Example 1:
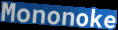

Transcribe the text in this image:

Mononoke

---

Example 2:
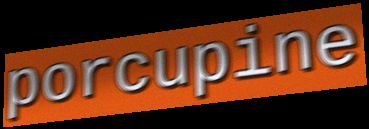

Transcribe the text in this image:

porcupine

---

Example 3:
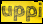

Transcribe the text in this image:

uppi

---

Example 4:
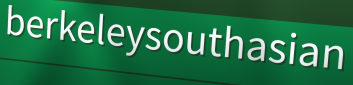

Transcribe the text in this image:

berkeleysouthasian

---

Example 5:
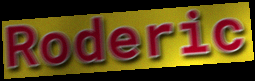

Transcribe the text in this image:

Roderic